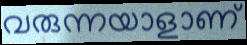
വരുന്നയാളാണ്